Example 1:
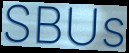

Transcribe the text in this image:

SBUs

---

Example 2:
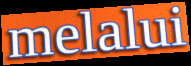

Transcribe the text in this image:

melalui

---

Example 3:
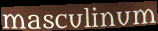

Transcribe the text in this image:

masculinum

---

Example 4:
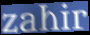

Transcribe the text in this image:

zahir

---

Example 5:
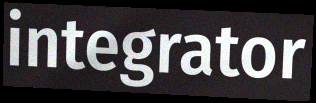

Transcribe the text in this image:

integrator